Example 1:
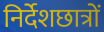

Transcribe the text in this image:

निर्देशछात्रों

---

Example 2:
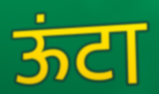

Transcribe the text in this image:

ऊंटा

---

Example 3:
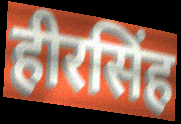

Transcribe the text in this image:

हीरसिंह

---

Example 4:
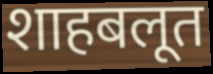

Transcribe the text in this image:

शाहबलूत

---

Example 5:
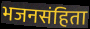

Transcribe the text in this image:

भजनसंहिता